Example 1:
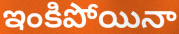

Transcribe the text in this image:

ఇంకిపోయినా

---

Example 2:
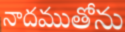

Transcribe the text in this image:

నాదముతోను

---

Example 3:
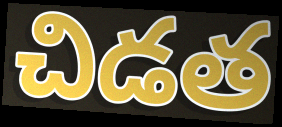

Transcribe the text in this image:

చిడత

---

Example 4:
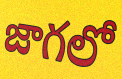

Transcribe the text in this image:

జాగలో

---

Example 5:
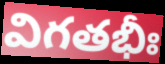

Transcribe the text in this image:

విగతభీః